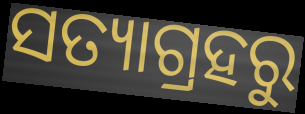
ସତ୍ୟାଗ୍ରହରୁ